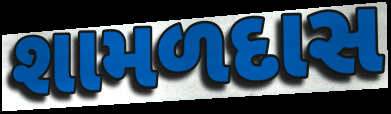
શામળદાસ